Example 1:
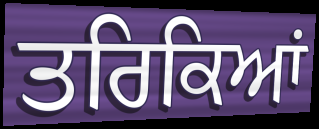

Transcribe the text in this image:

ਤਰਿਕਿਆਂ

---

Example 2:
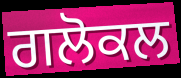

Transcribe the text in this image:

ਗਲੋਕਲ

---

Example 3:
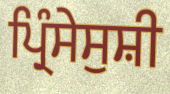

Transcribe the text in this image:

ਪ੍ਰਿੰਸੇਸੁਸ਼ੀ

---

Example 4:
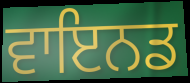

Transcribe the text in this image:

ਵਾਇਨਡ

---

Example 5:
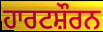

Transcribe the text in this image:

ਹਾਰਟਸ਼ੌਰਨ